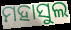
ମହାସୁଲ